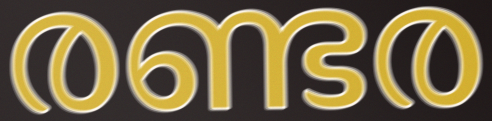
രണ്ടര